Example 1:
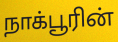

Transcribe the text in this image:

நாக்பூரின்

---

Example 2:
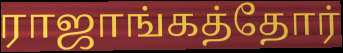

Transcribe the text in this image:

ராஜாங்கத்தோர்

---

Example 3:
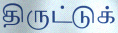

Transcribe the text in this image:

திருட்டுக்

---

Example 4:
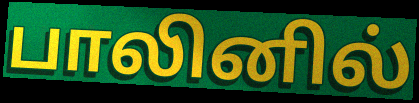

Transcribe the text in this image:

பாலினில்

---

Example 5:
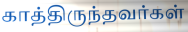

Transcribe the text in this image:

காத்திருந்தவர்கள்